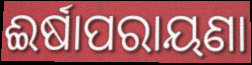
ଈର୍ଷାପରାୟଣା